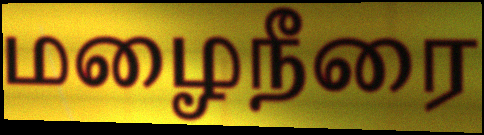
மழைநீரை